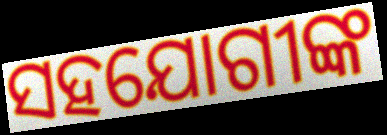
ସହଯୋଗୀଙ୍କ